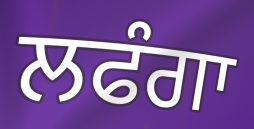
ਲਫੰਗਾ